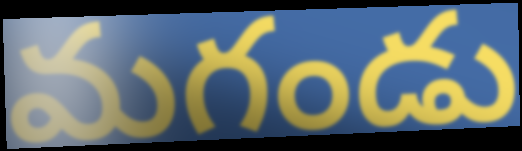
మగండు